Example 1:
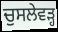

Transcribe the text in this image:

ਚੁਸਲੇਵੜ੍ਹ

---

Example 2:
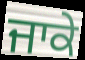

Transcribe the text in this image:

ਜਾਕੇ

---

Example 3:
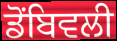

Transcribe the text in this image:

ਡੋਂਬਿਵਲੀ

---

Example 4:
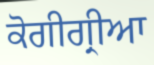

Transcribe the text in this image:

ਕੋਗੀਗ੍ਰੀਆ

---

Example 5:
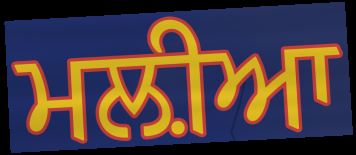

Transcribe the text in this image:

ਮਲ਼ੀਆ